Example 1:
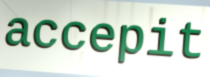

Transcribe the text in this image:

accepit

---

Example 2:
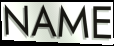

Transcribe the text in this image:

NAME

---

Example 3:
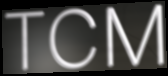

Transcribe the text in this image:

TCM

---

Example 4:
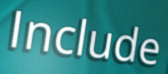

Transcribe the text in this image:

Include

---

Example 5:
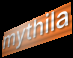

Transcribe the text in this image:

mythila